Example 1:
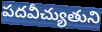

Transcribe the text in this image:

పదవీచ్యుతుని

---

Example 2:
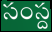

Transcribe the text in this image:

సంస్ద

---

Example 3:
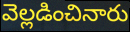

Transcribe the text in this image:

వెల్లడించినారు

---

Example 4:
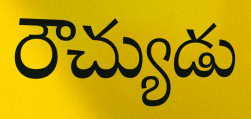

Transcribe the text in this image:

రౌచ్యుడు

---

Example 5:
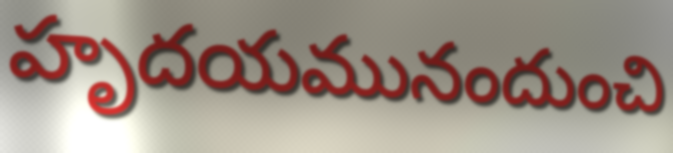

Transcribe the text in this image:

హృదయమునందుంచి